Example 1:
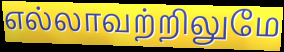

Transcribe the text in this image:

எல்லாவற்றிலுமே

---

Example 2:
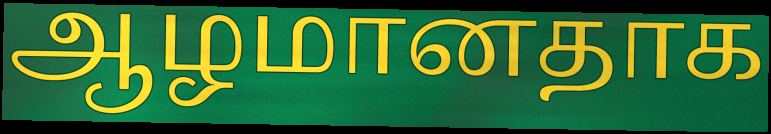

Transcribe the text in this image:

ஆழமானதாக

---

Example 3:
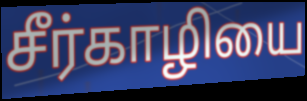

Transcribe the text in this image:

சீர்காழியை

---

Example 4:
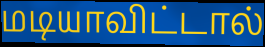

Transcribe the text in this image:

மடியாவிட்டால்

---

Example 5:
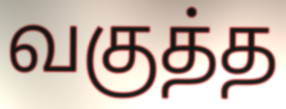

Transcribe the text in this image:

வகுத்த